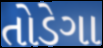
તોડેગા